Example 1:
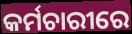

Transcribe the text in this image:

କର୍ମଚାରୀରେ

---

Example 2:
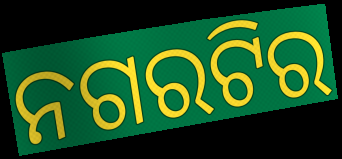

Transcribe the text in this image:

ନଗରଟିର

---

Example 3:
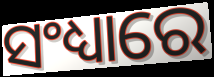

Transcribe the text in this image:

ସଂଧ୍ୟାରେ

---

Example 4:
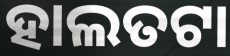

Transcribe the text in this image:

ହାଲତଟା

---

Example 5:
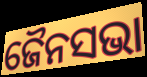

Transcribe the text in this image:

ଜୈନସଭା